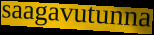
saagavutunna